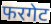
फरगेट